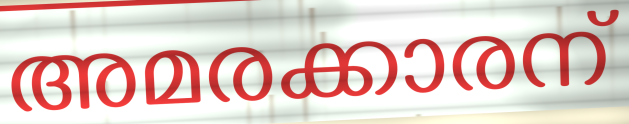
അമരക്കാരന്